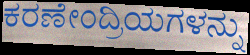
ಕರಣೇಂದ್ರಿಯಗಳನ್ನು